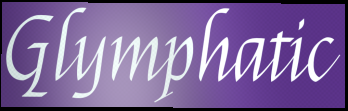
Glymphatic